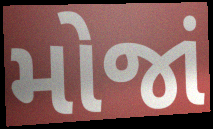
મોજાં